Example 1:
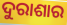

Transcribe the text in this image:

ଦୁରାଶାର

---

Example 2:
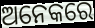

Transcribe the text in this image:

ଅନେକରେ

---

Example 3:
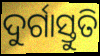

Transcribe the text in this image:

ଦୁର୍ଗାସ୍ତୁତି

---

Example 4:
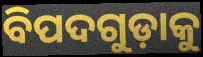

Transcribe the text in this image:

ବିପଦଗୁଡ଼ାକୁ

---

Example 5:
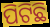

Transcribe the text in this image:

ପିଟିଛି